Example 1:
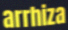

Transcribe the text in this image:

arrhiza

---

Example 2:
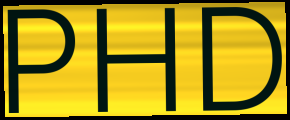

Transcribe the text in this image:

PHD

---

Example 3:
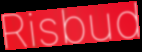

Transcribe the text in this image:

Risbud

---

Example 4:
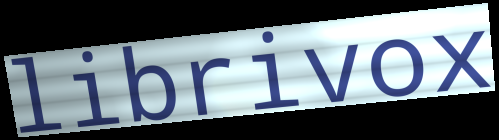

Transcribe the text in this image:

librivox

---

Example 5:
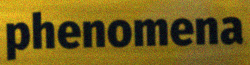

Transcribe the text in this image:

phenomena